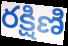
రక్షిణి